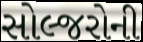
સોલ્જરોની